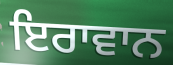
ਇਰਾਵਾਨ